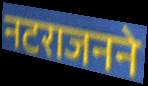
नटराजनने